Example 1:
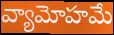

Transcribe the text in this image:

వ్యామోహమే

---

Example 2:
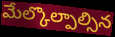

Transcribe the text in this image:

మేల్కొల్పాల్సిన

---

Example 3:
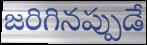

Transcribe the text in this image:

జరిగినప్పుడే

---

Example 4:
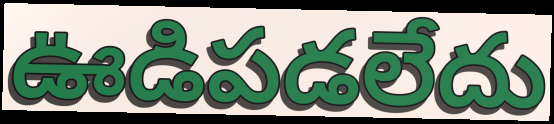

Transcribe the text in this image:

ఊడిపడలేదు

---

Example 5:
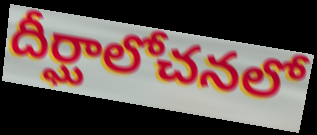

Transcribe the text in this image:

దీర్ఘాలోచనలో